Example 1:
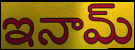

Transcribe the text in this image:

ఇనామ్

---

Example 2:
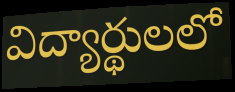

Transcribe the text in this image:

విద్యార్థులలో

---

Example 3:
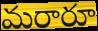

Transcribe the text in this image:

మరారూ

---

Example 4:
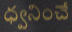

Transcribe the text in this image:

ధ్వనించే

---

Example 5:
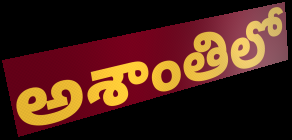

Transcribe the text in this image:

అశాంతిలో